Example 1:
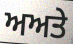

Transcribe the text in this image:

ਅਅਤੇ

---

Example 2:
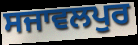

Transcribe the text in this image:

ਸਜਾਵਲਪੁਰ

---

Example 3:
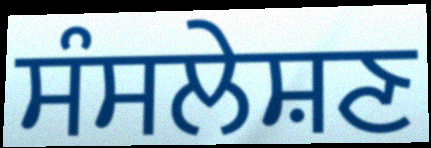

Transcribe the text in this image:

ਸੰਸਲੇਸ਼ਣ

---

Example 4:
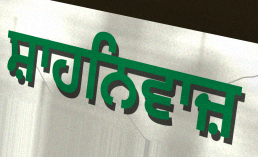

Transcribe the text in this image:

ਸ਼ਾਹਨਿਵਾਜ਼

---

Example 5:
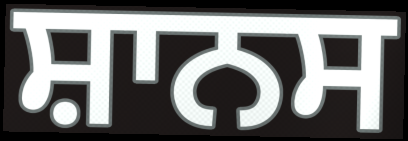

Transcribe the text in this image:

ਸ਼ਾਨਸ